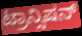
ಟ್ರಾನ್ಸಿಷನ್